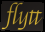
flytt